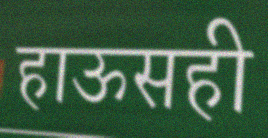
हाऊसही